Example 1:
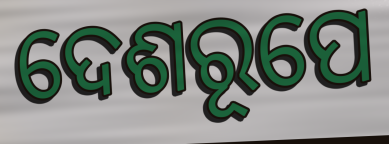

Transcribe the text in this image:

ଦେଶରୂପେ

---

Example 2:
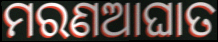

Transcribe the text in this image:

ମରଣଆଘାତ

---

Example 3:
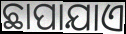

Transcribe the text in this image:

ଛାପାଯାଏ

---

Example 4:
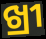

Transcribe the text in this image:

ଖ୍ରୀ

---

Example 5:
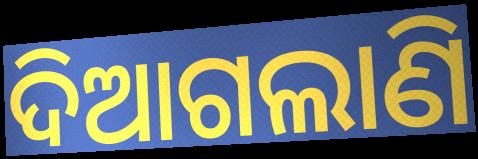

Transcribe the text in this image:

ଦିଆଗଲାଣି